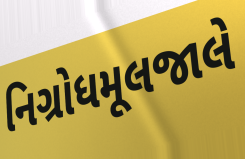
નિગ્રોધમૂલજાલે